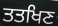
ਤਤਖਿਣ